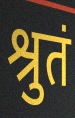
श्रुतं